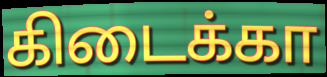
கிடைக்கா